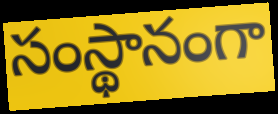
సంస్థానంగా